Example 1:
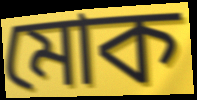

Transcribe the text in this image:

মোক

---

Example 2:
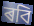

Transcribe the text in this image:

ৰবি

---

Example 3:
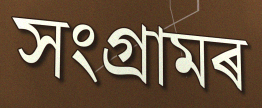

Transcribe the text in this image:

সংগ্ৰামৰ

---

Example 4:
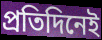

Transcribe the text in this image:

প্ৰতিদিনেই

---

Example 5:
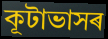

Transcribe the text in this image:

কূটাভাসৰ